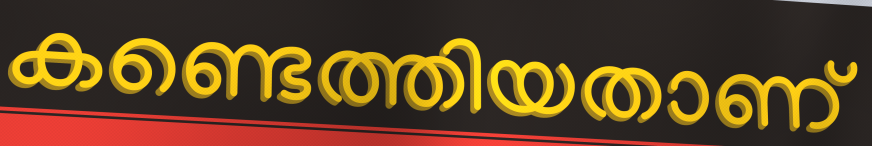
കണ്ടെത്തിയതാണ്